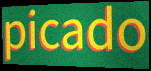
picado